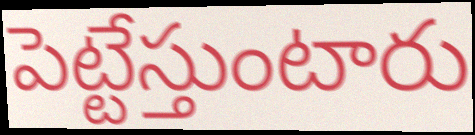
పెట్టేస్తుంటారు